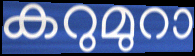
കറുമുറാ